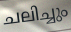
ചലിച്ചും